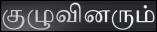
குழுவினரும்